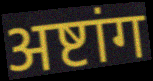
अष्टांग